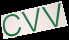
CVV